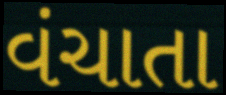
વંચાતા